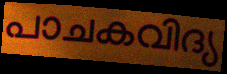
പാചകവിദ്യ